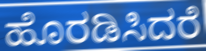
ಹೊರಡಿಸಿದರೆ